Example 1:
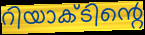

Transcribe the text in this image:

റിയാക്ടിന്റെ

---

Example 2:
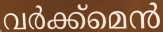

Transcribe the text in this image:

വർക്ക്മെൻ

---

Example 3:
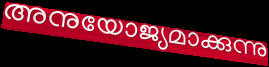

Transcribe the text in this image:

അനുയോജ്യമാക്കുന്നു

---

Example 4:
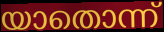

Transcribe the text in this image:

യാതൊന്ന്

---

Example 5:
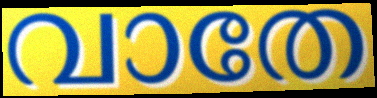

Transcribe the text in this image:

വാതേ